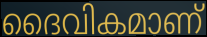
ദൈവികമാണ്